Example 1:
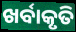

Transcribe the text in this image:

ଖର୍ବାକୃତି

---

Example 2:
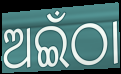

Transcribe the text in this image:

ଅଇଁଠା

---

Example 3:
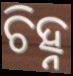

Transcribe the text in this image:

ଚିହ୍ନ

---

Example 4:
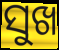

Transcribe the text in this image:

ସୁଖ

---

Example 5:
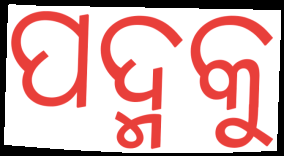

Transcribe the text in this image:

ପଦ୍ମକୁ